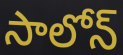
సాలోన్